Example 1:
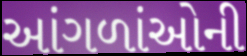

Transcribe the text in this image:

આંગળાંઓની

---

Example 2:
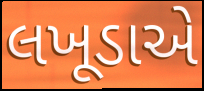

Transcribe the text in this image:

લખૂડાએ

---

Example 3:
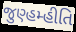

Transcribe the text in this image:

જુણ્હમ્હીતિ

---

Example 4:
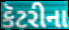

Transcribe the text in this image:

કૅટરીના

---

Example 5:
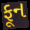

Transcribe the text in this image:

ફૂન